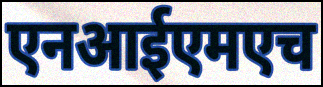
एनआईएमएच